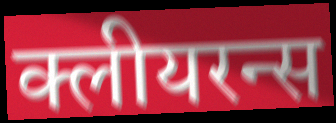
क्लीयरन्स